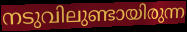
നടുവിലുണ്ടായിരുന്ന